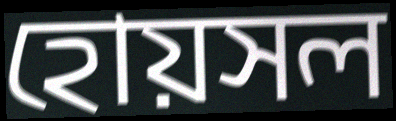
হোয়সল